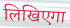
लिखिएगा